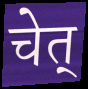
चेत्